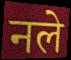
नले